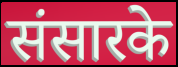
संसारके